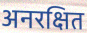
अनरक्षित